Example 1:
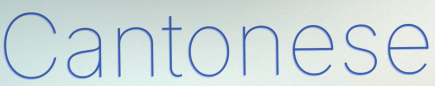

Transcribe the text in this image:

Cantonese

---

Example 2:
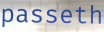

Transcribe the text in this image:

passeth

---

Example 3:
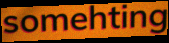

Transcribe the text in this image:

somehting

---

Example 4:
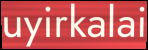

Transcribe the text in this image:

uyirkalai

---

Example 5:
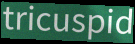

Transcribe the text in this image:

tricuspid